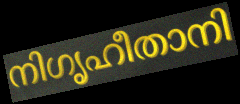
നിഗൃഹീതാനി